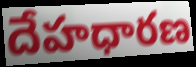
దేహధారణ